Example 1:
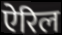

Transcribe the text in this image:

ऐरिल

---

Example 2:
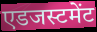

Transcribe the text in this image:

एडजस्‍टमेंट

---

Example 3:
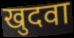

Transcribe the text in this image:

खुदवा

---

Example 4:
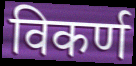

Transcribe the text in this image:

विकर्ण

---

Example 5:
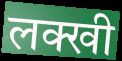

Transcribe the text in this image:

लक्खी